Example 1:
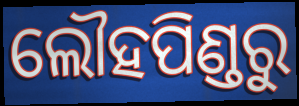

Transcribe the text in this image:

ଲୌହପିଣ୍ଡରୁ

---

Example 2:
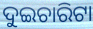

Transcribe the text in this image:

ଦୁଇଚାରିଟା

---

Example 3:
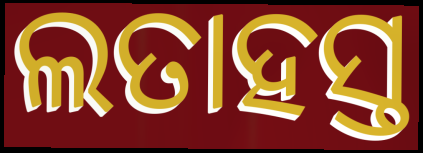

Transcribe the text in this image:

ଲତାହସ୍ତ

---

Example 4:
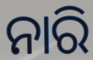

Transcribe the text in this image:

ନାରି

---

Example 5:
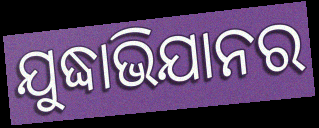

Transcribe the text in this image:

ଯୁଦ୍ଧାଭିଯାନର